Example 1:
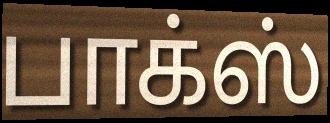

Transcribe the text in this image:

பாக்ஸ்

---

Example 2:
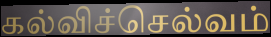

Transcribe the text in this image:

கல்விச்செல்வம்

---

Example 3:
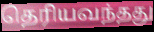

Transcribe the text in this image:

தெரியவந்தது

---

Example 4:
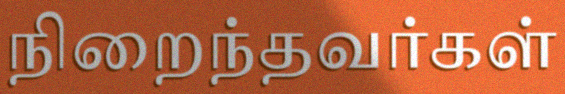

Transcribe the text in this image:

நிறைந்தவர்கள்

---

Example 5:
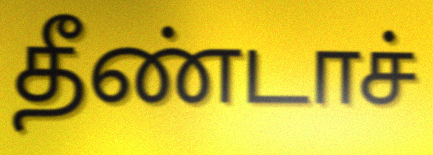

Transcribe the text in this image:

தீண்டாச்